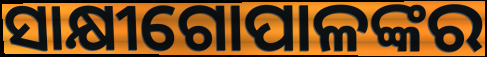
ସାକ୍ଷୀଗୋପାଳଙ୍କର